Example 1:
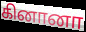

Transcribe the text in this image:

கினானா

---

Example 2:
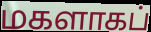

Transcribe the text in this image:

மகளாகப்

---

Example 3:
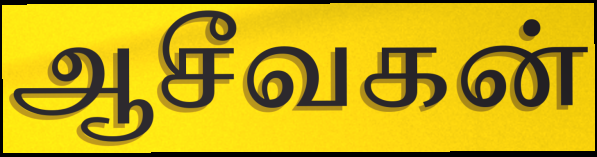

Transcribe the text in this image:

ஆசீவகன்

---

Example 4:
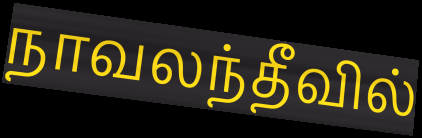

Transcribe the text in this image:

நாவலந்தீவில்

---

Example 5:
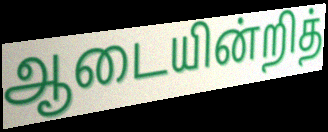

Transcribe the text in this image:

ஆடையின்றித்